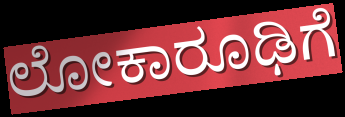
ಲೋಕಾರೂಢಿಗೆ